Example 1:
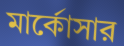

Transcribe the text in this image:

মার্কোসার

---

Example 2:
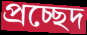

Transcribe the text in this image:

প্রচ্ছেদ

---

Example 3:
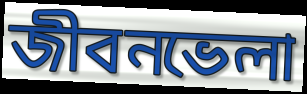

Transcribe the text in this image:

জীবনভেলা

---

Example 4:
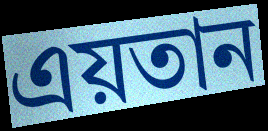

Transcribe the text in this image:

এয়তান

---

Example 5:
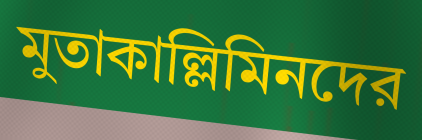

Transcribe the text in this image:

মুতাকাল্লিমিনদের